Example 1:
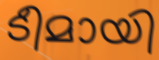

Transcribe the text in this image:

ടീമായി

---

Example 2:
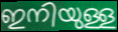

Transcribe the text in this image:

ഇനിയുള്ള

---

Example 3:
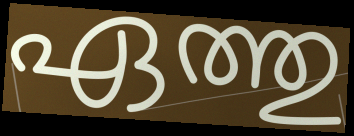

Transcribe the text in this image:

ഏത്തു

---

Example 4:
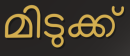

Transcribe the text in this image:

മിടുക്ക്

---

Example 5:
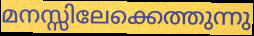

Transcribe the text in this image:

മനസ്സിലേക്കെത്തുന്നു